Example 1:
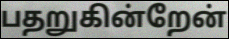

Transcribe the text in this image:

பதறுகின்றேன்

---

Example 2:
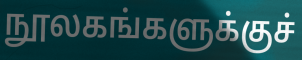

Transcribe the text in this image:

நூலகங்களுக்குச்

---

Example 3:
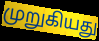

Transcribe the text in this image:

முறுகியது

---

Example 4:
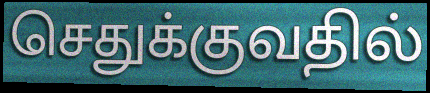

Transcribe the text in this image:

செதுக்குவதில்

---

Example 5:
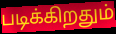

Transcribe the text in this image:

படிக்கிறதும்